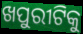
ଖପୁରୀଟିକୁ